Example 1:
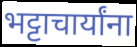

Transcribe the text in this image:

भट्टाचार्यांना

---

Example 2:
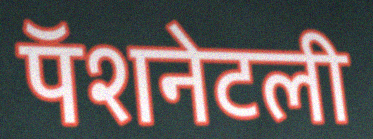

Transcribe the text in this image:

पॅशनेटली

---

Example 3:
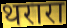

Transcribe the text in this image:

थरारा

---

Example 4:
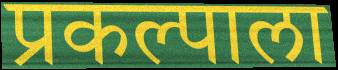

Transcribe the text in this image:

प्रकल्पाला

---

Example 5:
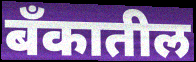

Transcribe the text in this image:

बँकातील